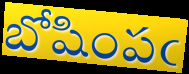
బోషింపఁ